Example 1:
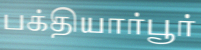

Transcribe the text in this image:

பக்தியார்பூர்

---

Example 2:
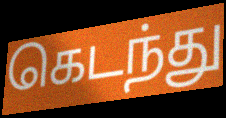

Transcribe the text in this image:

கெடந்து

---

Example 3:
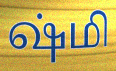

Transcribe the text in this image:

ஷ்மி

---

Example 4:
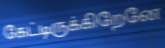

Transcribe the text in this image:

கேட்டிருக்கிறேனே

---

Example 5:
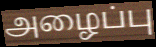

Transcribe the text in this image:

அழைப்பு